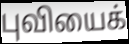
புவியைக்